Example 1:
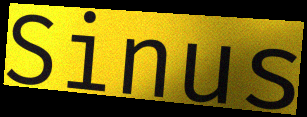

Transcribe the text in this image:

Sinus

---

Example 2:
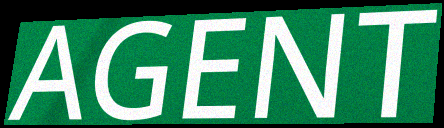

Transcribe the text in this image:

AGENT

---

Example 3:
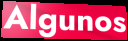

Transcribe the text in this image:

Algunos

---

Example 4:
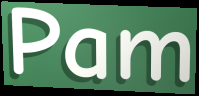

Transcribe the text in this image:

Pam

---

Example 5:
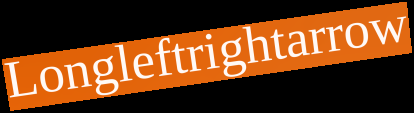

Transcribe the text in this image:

Longleftrightarrow